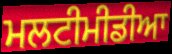
ਮਲਟੀਮੀਡੀਆ